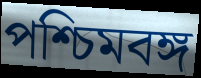
পশ্চিমবঙ্গ